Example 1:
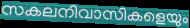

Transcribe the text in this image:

സകലനിവാസികളെയും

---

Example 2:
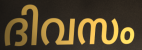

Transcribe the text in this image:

ദിവസം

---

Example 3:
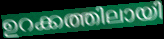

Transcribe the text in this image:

ഉറക്കത്തിലായി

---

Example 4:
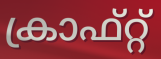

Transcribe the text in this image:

ക്രാഫ്റ്റ്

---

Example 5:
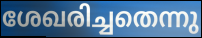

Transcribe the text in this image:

ശേഖരിച്ചതെന്നു